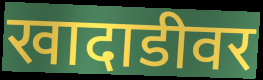
खादाडीवर